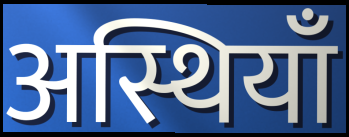
अस्थियाँ